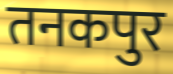
तनकपुर